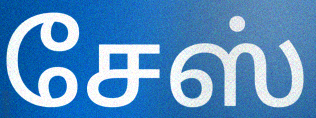
சேஸ்